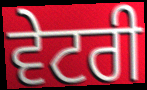
ਵੇਟਰੀ